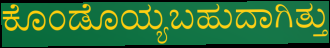
ಕೊಂಡೊಯ್ಯಬಹುದಾಗಿತ್ತು